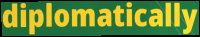
diplomatically